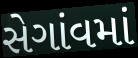
સેગાંવમાં